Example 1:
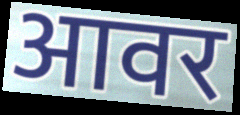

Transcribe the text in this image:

आवर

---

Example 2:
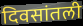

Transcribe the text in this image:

दिवसांतली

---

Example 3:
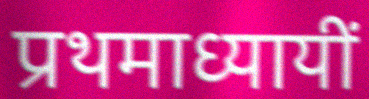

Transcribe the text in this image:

प्रथमाध्यायीं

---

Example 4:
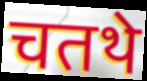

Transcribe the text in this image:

चतथे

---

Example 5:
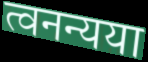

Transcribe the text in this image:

त्वनन्यया